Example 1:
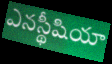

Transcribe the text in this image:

ఎనస్థీషియా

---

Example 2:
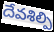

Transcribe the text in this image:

దేవశిల్పి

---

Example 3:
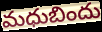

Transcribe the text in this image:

మధుబిందు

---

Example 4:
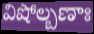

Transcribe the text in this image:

విషోల్బణాః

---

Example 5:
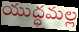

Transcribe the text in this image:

యుద్ధమల్ల